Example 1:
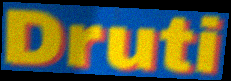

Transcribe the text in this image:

Druti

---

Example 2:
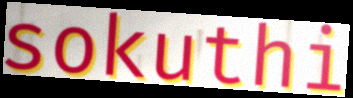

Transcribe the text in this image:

sokuthi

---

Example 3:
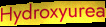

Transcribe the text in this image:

Hydroxyurea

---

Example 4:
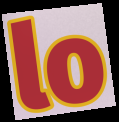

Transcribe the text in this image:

lo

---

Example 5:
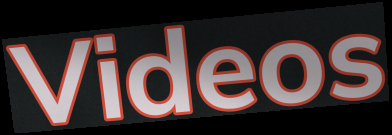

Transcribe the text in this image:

Videos